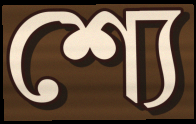
শ্যে